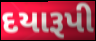
દયારૂપી